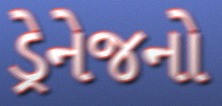
ડ્રેનેજનો